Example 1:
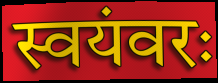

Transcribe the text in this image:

स्वयंवरः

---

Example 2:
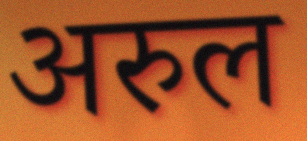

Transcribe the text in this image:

अरुल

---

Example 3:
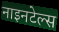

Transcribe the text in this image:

नाइनटेल्स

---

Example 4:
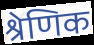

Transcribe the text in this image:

श्रेणिक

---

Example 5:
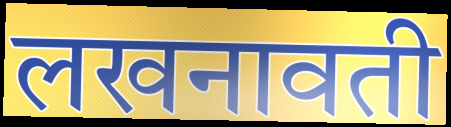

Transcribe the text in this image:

लखनावती